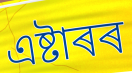
এষ্টাৰৰ